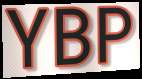
YBP